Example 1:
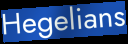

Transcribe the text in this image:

Hegelians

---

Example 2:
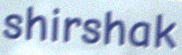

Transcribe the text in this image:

shirshak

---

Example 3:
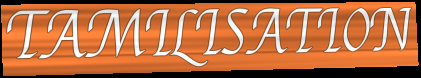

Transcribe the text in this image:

TAMILISATION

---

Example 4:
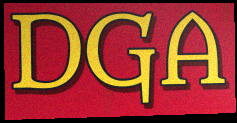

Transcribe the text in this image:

DGA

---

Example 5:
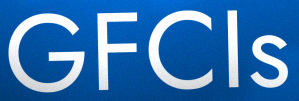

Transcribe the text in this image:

GFCIs